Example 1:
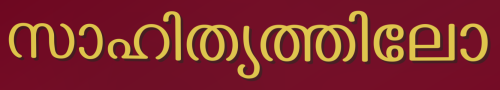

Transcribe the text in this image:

സാഹിത്യത്തിലോ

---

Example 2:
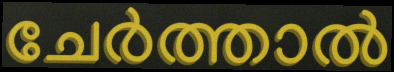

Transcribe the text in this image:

ചേർത്താൽ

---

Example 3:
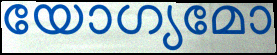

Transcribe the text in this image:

യോഗ്യമോ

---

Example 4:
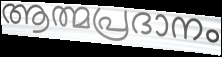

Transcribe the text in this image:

ആത്മപ്രദാനം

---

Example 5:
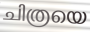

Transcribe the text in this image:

ചിത്രയെ